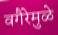
वगैरेमुळे